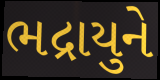
ભદ્રાયુને